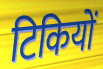
टिकियों